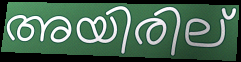
അയിരില്